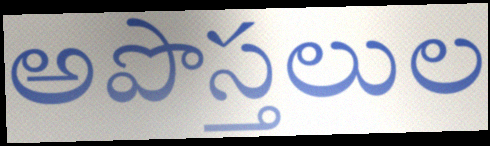
అపొస్తలుల